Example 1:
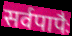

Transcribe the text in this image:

सर्वपापैः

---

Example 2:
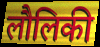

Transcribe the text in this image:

लौलिकी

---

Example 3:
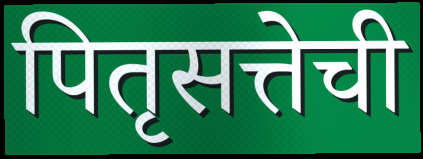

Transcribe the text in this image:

पितृसत्तेची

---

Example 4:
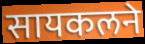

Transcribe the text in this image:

सायकलने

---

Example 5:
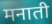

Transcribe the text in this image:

मनाती